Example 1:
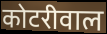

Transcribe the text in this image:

कोटरीवाल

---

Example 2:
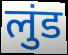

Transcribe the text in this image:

लुंड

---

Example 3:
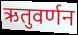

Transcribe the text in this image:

ऋतुवर्णन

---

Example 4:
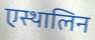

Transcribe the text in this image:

एस्थालिन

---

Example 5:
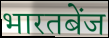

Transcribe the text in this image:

भारतबेंज